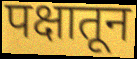
पक्षातून